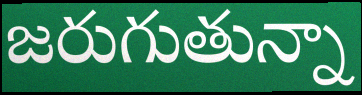
జరుగుతున్నా